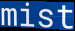
mist